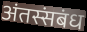
अंतस्संबंध